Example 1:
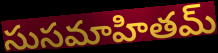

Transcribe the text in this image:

సుసమాహితమ్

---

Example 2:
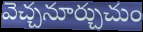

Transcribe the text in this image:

వెచ్చనూర్చుచుం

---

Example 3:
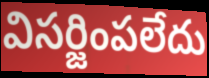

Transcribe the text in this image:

విసర్జింపలేదు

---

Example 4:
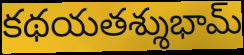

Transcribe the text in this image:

కథయతశ్శుభామ్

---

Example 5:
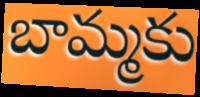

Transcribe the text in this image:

బామ్మకు